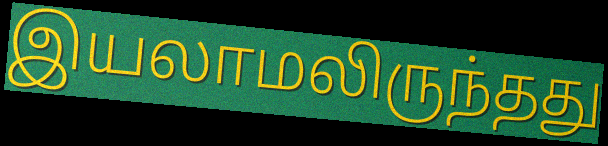
இயலாமலிருந்தது